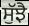
ਸੁੱਝੈ